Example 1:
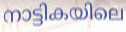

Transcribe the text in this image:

നാട്ടികയിലെ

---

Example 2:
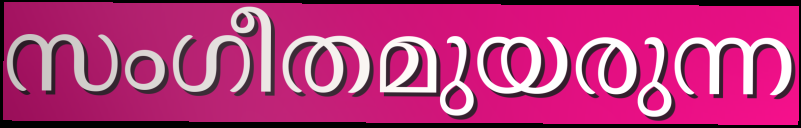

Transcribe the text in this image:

സംഗീതമുയരുന്ന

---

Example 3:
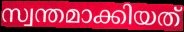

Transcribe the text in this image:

സ്വന്തമാക്കിയത്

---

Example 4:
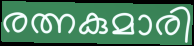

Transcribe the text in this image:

രത്നകുമാരി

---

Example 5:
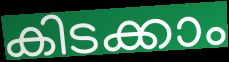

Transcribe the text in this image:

കിടക്കാം